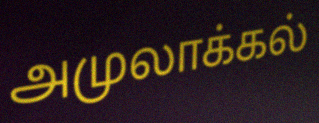
அமுலாக்கல்